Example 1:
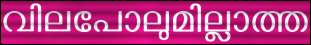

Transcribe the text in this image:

വിലപോലുമില്ലാത്ത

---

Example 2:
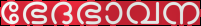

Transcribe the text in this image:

ഭേദഭാവന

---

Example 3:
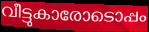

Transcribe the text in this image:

വീട്ടുകാരോടൊപ്പം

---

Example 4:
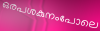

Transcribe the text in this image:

ഒരപശകുനംപോലെ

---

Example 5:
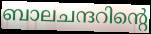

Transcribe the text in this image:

ബാലചന്ദറിന്റെ